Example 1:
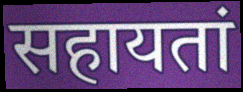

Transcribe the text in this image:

सहायतां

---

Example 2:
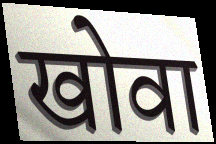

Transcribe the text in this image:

खोवा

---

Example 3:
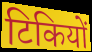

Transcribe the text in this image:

टिकियों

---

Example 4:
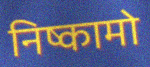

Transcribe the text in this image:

निष्कामो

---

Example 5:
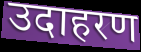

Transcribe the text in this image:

उदाहरण